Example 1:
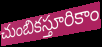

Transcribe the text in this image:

చుంబికస్తూరికాం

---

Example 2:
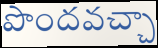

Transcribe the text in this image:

పొందవచ్చా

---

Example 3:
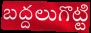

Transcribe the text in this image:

బద్దలుగొట్టి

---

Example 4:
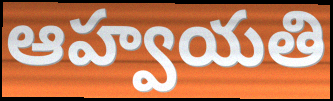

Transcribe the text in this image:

ఆహ్వయతి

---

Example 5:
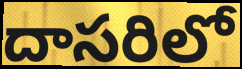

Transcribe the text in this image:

దాసరిలో